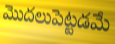
మొదలుపెట్టడమే